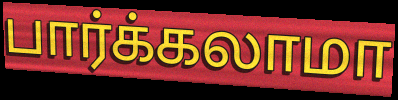
பார்க்கலாமா